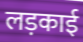
लड़काई